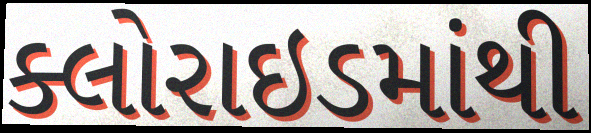
ક્લોરાઇડમાંથી